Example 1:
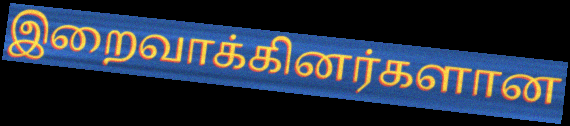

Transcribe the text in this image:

இறைவாக்கினர்களான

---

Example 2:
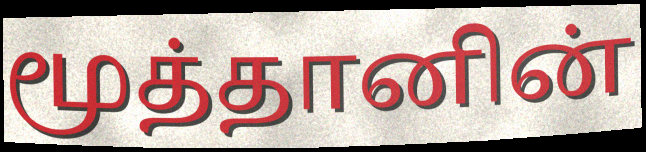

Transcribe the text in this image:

மூத்தானின்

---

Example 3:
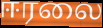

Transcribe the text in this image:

ஈரலை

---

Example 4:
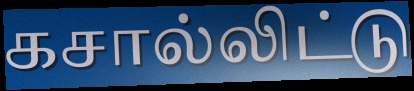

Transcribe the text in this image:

கசால்லிட்டு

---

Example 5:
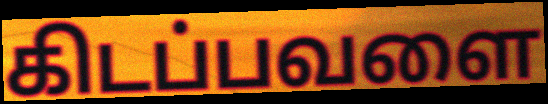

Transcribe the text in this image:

கிடப்பவளை